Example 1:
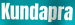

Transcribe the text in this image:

Kundapra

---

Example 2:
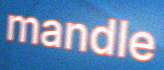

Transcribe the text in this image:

mandle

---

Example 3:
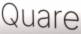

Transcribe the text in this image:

Quare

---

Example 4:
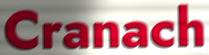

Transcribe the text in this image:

Cranach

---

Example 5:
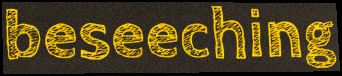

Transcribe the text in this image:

beseeching